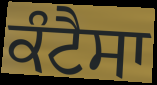
ਕੰਟੈਸਾ